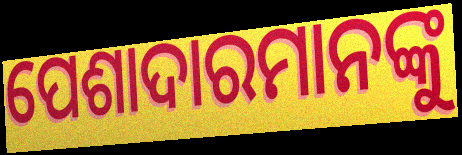
ପେଶାଦାରମାନଙ୍କୁ